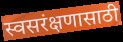
स्वसरंक्षणासाठी